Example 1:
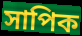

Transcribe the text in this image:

সাপিক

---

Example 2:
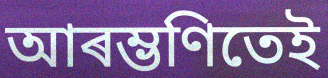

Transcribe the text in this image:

আৰম্ভণিতেই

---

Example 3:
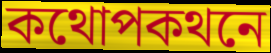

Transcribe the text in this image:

কথোপকথনে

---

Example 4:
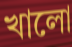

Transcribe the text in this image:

খালো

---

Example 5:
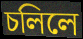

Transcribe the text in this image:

চলিলে